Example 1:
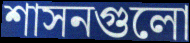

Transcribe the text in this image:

শাসনগুলো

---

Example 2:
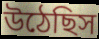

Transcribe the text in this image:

উঠেছিস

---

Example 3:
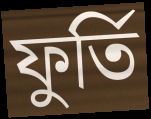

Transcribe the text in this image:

ফুর্তি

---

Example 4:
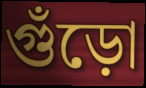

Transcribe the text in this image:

গুঁড়ো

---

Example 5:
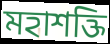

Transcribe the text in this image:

মহাশক্তি